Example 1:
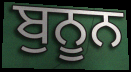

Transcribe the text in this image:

ਬੁਨੂਨ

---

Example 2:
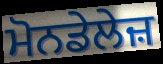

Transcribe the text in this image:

ਮੋਨਡੇਲੇਜ਼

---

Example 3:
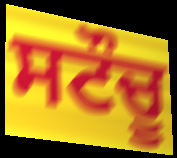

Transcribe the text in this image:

ਸਟੌਚੂ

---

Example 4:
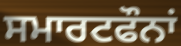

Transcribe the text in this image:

ਸਮਾਰਟਫੌਨਾਂ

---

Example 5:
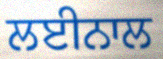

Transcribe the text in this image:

ਲਈਨਾਲ